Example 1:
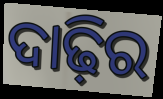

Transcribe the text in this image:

ଦାଢ଼ିର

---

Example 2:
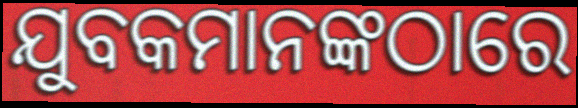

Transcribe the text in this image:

ଯୁବକମାନଙ୍କଠାରେ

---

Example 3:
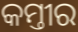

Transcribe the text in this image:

କମ୍ତୀର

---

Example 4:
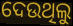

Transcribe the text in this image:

ଦେଉଥିଲୁ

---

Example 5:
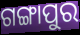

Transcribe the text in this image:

ଗଙ୍ଗାପୁର